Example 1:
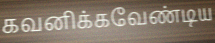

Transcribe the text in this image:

கவனிக்கவேண்டிய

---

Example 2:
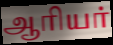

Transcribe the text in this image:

ஆரியர்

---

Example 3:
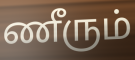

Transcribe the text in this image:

ணீரும்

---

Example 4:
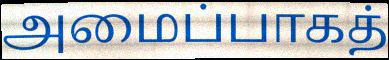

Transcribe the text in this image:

அமைப்பாகத்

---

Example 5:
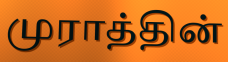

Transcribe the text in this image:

முராத்தின்